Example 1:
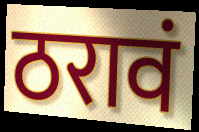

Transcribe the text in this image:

ठरावं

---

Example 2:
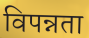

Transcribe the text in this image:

विपन्नता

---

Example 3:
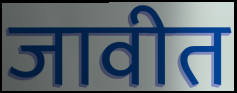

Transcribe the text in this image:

जावीत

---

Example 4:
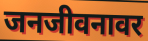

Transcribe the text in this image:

जनजीवनावर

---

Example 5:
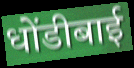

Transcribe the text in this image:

धोंडीबाई